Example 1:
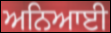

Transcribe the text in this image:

ਅਨਿਆਈ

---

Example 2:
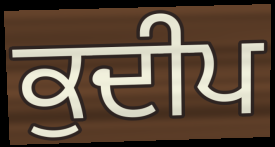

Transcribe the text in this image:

ਕੁਦੀਪ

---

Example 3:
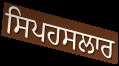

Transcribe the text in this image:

ਸਿਪਹਸਲਾਰ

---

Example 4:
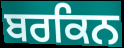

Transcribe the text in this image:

ਬਰਕਿਨ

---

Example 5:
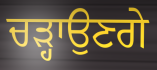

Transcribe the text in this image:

ਚੜ੍ਹਾਉਣਗੇ